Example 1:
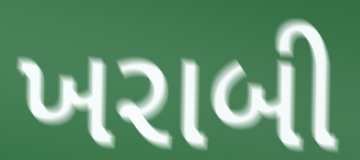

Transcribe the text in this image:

ખરાબી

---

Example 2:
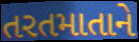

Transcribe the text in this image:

તરતમાતાને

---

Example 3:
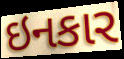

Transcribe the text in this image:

ઇનકાર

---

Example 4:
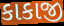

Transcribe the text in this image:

કાકાજી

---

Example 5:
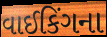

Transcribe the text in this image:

વાઈકિંગના